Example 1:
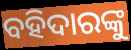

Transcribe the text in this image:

ବହିଦାରଙ୍କୁ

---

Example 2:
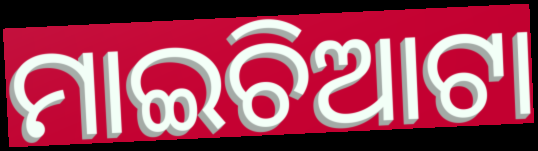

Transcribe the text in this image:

ମାଇଚିଆଟା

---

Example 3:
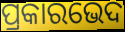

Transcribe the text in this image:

ପ୍ରକାରଭେଦ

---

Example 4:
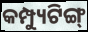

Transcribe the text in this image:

କମ୍ପ୍ୟୁଟିଙ୍ଗ୍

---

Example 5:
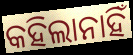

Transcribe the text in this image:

କହିଲାନାହିଁ